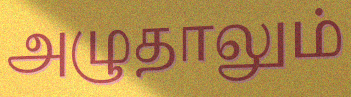
அழுதாலும்